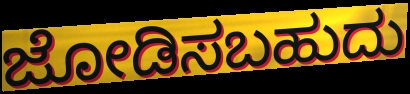
ಜೋಡಿಸಬಹುದು